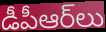
డీపీఆర్‌లు